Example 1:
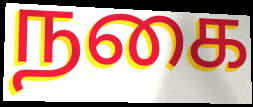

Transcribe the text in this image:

நகை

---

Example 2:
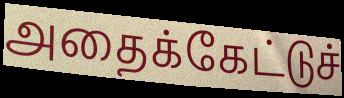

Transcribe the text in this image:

அதைக்கேட்டுச்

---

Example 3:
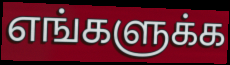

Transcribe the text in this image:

எங்களுக்க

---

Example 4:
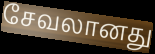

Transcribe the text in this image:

சேவலானது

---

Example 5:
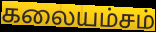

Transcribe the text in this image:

கலையம்சம்